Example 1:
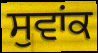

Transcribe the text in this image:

ਸੁਵਾਂਕ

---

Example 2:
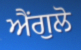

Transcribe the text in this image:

ਐਂਗੁਲੋ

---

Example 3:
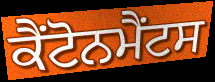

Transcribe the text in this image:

ਕੈਂਟੋਨਮੈਂਟਸ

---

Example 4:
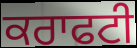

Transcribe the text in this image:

ਕਰਾਫਟੀ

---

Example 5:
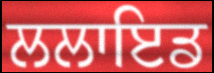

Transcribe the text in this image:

ਲਲਾਇਡ